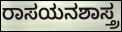
ರಾಸಯನಶಾಸ್ತ್ರ